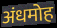
अंधमोह